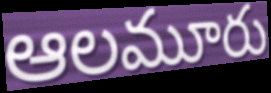
ఆలమూరు